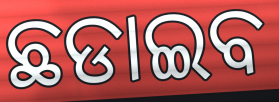
ଛଡାଇବ